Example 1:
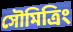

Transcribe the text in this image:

সৌমিত্রিং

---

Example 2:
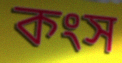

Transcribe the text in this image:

কংস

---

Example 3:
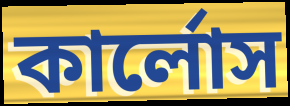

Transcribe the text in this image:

কার্লোস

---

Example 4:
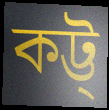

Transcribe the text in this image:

কট্ট্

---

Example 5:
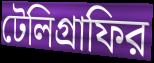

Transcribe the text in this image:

টেলিগ্রাফির